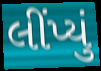
લીંપ્યું